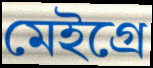
মেইগ্রে